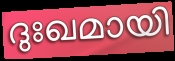
ദുഃഖമായി